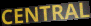
CENTRAL